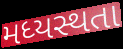
મધ્યસ્થતા